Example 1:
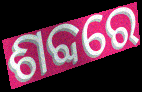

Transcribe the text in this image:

ଶବ୍ଦରେ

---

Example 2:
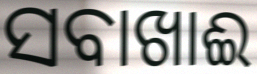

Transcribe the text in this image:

ସବାଖାଈ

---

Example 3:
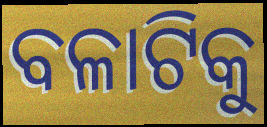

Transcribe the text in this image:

ବଳାଟିକୁ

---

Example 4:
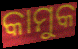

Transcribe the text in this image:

କାମୁକ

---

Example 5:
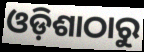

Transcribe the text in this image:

ଓଡ଼ିଶାଠାରୁ